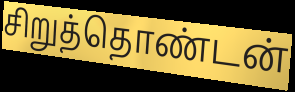
சிறுத்தொண்டன்